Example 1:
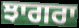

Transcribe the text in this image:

ਝਾਗਰਾ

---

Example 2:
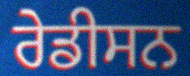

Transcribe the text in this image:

ਰੇਡੀਸਨ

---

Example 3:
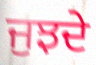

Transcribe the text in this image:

ਜੁਝਦੇ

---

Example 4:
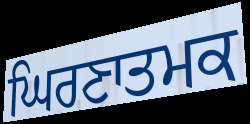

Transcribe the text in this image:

ਘਿਰਣਾਤਮਕ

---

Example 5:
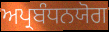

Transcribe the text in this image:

ਅਪ੍ਰਬੰਧਨਯੋਗ